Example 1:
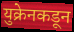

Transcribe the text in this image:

युक्रेनकडून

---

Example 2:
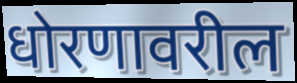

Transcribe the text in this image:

धोरणावरील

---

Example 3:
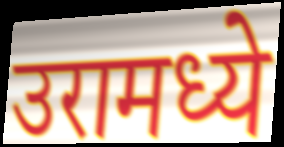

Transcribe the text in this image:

उरामध्ये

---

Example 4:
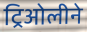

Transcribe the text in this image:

ट्रिओलीने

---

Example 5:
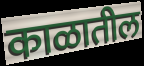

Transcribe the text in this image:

काळातील